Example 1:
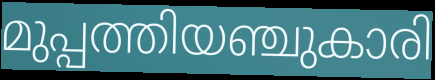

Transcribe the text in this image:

മുപ്പത്തിയഞ്ചുകാരി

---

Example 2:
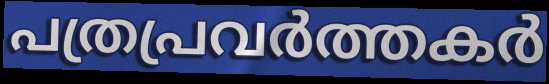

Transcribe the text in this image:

പത്രപ്രവർത്തകർ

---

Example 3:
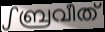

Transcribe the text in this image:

ഽബ്രവീത്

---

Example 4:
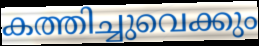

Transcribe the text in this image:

കത്തിച്ചുവെക്കും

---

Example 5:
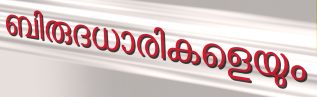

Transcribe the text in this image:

ബിരുദധാരികളെയും